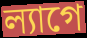
ল্যাগে